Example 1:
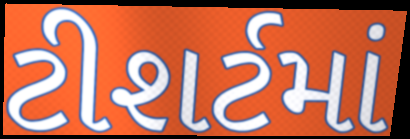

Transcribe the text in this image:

ટીશર્ટમાં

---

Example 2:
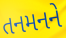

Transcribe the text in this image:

તનમનને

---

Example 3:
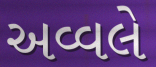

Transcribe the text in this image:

અવ્વલે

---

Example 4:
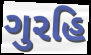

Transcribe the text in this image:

ગુરહિ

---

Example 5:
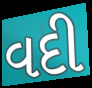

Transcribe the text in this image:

વદી